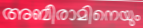
അബീരാമിനെയും